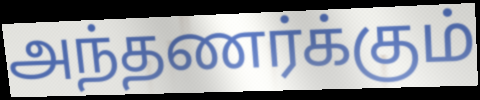
அந்தணர்க்கும்